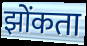
झोंकता